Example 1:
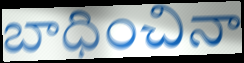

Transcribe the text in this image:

బాధించినా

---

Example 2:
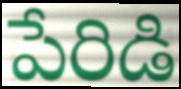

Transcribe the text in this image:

పేరిడి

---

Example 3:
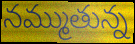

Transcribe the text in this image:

నమ్ముతున్న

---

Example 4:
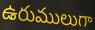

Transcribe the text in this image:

ఉరుములుగా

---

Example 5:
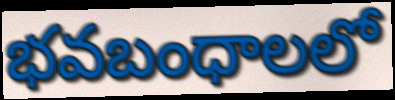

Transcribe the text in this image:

భవబంధాలలో